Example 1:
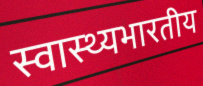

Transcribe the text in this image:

स्वास्थ्यभारतीय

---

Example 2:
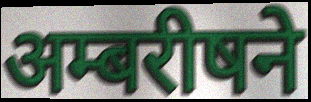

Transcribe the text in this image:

अम्बरीषने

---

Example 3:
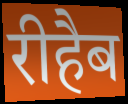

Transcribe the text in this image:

रीहैब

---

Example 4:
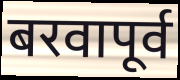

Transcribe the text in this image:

बरवापूर्व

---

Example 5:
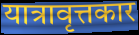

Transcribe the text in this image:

यात्रावृत्तकार